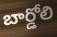
బార్డోలి